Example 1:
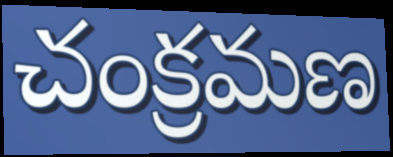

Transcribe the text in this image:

చంక్రమణ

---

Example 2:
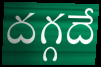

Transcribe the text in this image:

దగ్గదే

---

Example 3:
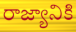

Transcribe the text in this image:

రాజ్యానికి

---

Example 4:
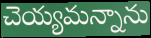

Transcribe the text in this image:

చెయ్యమన్నాను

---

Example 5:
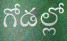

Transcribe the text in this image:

గోడల్లో